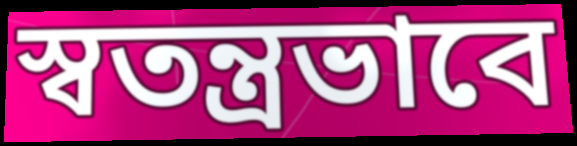
স্বতন্ত্রভাবে